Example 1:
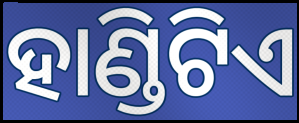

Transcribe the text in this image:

ହାଣ୍ଡିଟିଏ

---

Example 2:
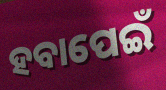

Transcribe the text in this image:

ହବାପେଇଁ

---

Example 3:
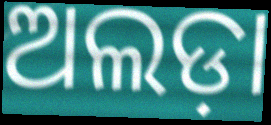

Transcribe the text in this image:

ଅଲଡ଼ା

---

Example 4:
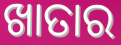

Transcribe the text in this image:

ଖାତାର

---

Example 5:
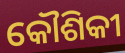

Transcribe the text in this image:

କୌଶିକୀ